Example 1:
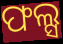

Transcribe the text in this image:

ଫଲ୍ସ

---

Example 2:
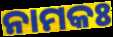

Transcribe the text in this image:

ନାମକଃ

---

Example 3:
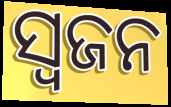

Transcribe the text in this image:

ସ୍ୱଜନ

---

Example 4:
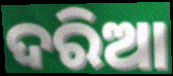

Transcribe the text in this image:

ଦରିଆ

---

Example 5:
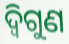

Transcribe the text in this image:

ଦ୍ୱିଗୁଣ